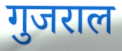
गुजराल